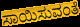
ಸಾಯಿಸುವಂತೆ